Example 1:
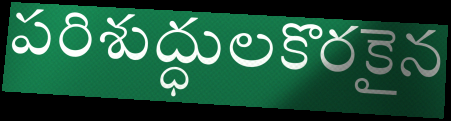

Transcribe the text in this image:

పరిశుద్ధులకొరకైన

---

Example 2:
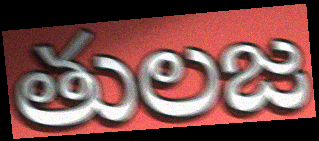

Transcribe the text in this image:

తులజ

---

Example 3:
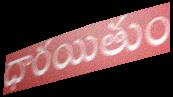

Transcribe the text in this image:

ధారయితుం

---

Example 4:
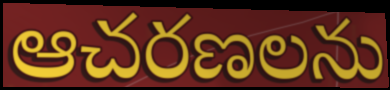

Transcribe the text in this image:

ఆచరణలను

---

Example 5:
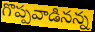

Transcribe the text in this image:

గొప్పవాడినన్న